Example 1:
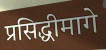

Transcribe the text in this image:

प्रसिद्धीमागे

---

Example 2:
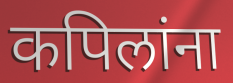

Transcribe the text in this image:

कपिलांना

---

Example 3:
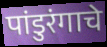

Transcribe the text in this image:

पांडुरंगाचे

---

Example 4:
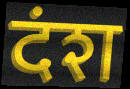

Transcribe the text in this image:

दंश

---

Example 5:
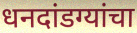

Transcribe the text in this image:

धनदांडग्यांचा